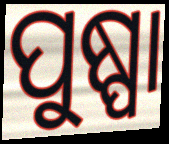
ପୁଷ୍ପା